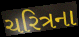
ચરિત્રના